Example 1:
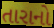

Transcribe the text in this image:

તારાનો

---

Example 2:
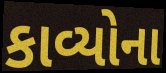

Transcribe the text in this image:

કાવ્યોના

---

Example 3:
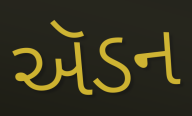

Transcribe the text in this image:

ઍડન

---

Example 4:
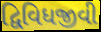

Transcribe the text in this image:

દ્વિવિધજીવી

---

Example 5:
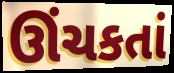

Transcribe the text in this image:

ઊંચકતાં